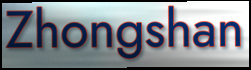
Zhongshan